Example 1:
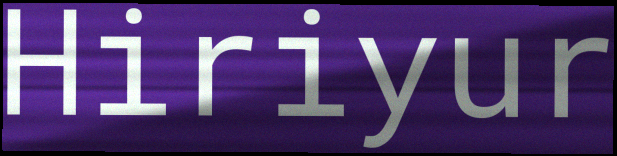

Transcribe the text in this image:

Hiriyur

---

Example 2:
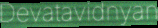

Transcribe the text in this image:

Devatavidnyan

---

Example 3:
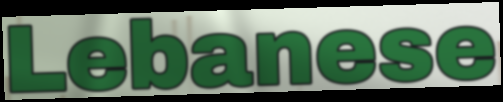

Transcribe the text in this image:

Lebanese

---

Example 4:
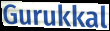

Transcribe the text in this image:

Gurukkal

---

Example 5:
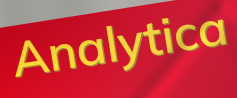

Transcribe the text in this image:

Analytica